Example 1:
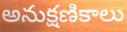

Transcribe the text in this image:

అనుక్షణికాలు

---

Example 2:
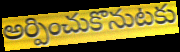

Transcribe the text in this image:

అర్పించుకొనుటకు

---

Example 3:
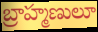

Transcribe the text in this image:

బ్రాహ్మణులూ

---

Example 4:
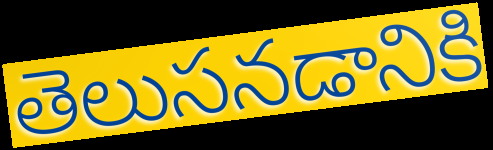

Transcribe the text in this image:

తెలుసనడానికి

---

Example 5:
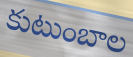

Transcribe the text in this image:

కుటుంబాల